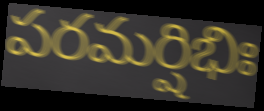
పరమర్షిభిః